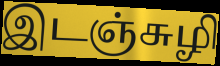
இடஞ்சுழி